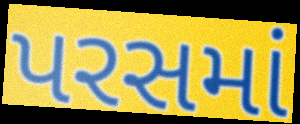
પરસમાં